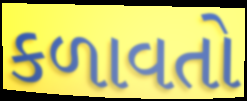
કળાવતો